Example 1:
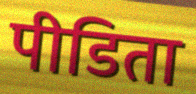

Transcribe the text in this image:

पीडिता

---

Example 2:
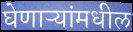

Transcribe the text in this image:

घेणाऱ्यांमधील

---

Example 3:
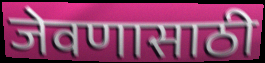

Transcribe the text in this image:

जेवणासाठी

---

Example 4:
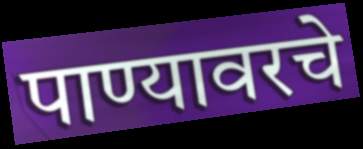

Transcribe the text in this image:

पाण्यावरचे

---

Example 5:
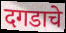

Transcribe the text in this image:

दगडाचे